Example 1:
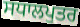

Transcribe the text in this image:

ਸਧਾਲਪੁਤਰ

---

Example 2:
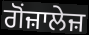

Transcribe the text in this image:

ਗੋਂਜ਼ਾਲੇਜ਼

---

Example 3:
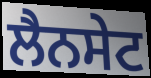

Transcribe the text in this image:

ਲੈਨਸੇਟ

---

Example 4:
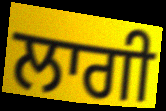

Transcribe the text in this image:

ਲਾਗੀ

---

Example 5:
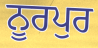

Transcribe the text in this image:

ਨੂਰਪੁਰ